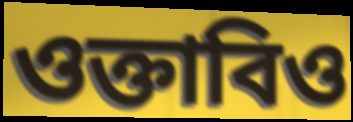
ওক্তাবিও